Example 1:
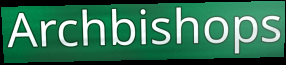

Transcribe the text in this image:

Archbishops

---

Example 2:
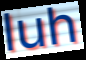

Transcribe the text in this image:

luh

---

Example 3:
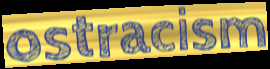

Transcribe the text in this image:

ostracism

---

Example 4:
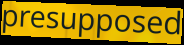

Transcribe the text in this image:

presupposed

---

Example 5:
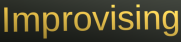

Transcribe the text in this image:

Improvising